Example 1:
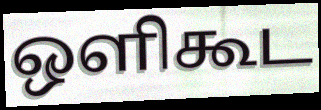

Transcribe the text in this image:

ஒளிகூட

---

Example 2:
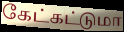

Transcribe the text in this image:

கேட்கட்டுமா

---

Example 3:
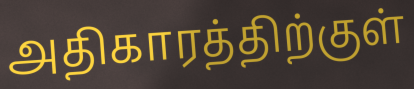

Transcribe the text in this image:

அதிகாரத்திற்குள்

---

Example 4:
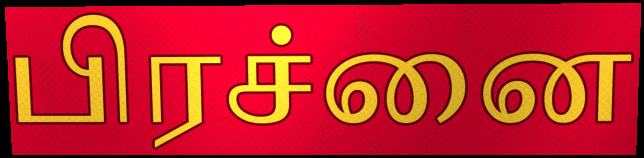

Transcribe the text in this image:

பிரச்னை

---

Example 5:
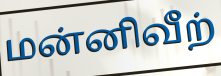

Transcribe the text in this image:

மன்னிவீற்